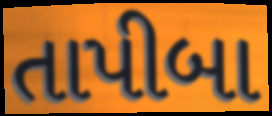
તાપીબા